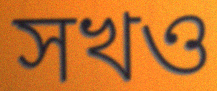
সখও